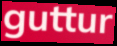
guttur